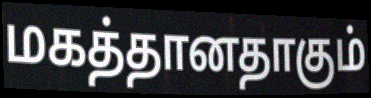
மகத்தானதாகும்